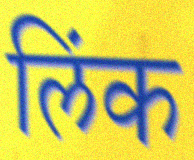
लिंक